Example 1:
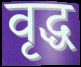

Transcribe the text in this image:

वृद्ध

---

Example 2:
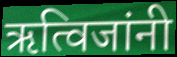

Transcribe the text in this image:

ऋत्विजांनी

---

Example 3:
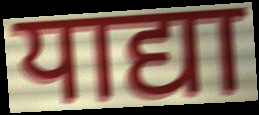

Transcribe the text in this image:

याद्या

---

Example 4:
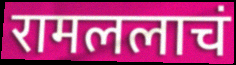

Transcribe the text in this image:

रामललाचं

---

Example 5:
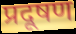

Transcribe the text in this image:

प्रदूषण